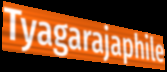
Tyagarajaphile